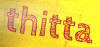
thitta